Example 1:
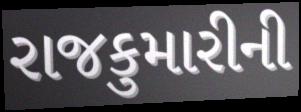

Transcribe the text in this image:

રાજકુમારીની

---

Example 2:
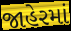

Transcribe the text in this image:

જાહેરમાં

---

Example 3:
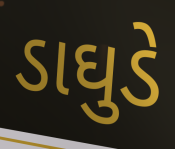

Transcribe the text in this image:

ડાઘુડે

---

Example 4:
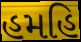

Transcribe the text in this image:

હમહિ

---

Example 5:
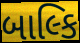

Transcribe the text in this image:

બાલ્કિ